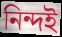
নিন্দই